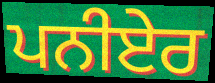
ਪਨੀਏਰ